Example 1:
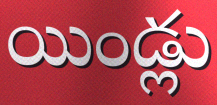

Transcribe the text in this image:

యిండ్లు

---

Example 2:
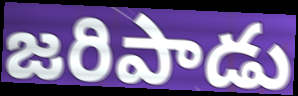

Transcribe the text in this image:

జరిపాడు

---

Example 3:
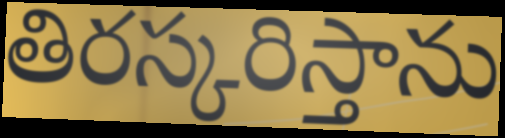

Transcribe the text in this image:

తిరస్కరిస్తాను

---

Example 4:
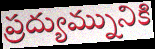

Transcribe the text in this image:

ప్రద్యుమ్నునికి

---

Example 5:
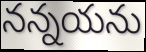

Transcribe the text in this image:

నన్నయను